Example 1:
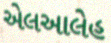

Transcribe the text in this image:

એલઆલેહ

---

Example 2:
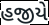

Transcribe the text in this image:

હજીયે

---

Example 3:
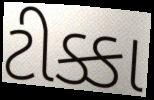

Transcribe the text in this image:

ટીક્કા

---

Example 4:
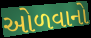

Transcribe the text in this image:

ઓળવાનો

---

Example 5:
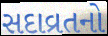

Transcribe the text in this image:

સદાવ્રતનો